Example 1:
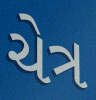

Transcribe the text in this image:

ચેત્ર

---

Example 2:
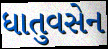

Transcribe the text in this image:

ધાતુવસેન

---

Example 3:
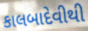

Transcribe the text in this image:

કાલબાદેવીથી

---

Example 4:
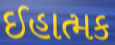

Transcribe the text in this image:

ઈહાત્મક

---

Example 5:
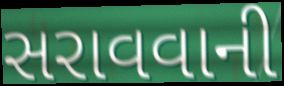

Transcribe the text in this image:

સરાવવાની